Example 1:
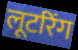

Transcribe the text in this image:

लूटरिंग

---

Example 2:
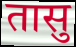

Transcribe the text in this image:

तासु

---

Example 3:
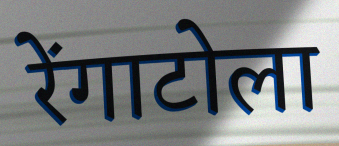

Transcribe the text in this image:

रेंगाटोला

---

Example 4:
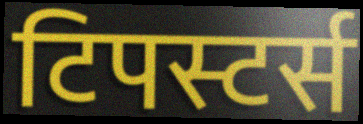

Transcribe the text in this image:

टिपस्टर्स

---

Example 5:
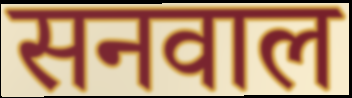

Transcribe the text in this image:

सनवाल